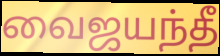
வைஜயந்தீ